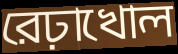
রেঢ়াখোল